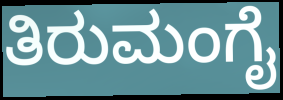
ತಿರುಮಂಗೈ